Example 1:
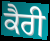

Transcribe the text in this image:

ਕੈਰੀ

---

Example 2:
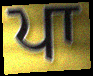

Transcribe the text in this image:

ਪਾ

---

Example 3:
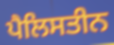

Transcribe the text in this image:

ਪੈਲਿਸਤੀਨ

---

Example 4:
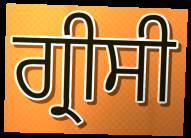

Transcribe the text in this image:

ਗ੍ਰੀਸੀ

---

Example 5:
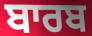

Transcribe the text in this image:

ਬਾਰਬ